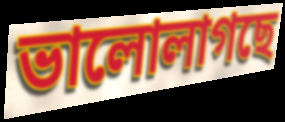
ভালোলাগছে